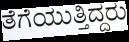
ತೆಗೆಯುತ್ತಿದ್ದರು